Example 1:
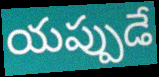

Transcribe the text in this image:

యప్పుడే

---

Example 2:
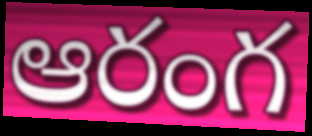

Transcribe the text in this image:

ఆరంగ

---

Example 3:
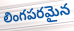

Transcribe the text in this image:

లింగపరమైన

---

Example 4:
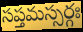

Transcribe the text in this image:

సప్తమస్సర్గః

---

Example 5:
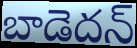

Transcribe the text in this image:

బాడెదన్